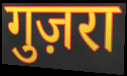
गुज़रा